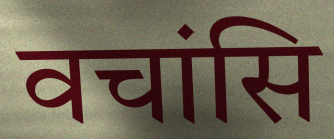
वचांसि